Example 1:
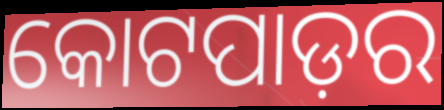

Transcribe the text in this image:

କୋଟପାଡ଼ର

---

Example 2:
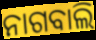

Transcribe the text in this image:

ନାଗବାଲି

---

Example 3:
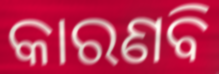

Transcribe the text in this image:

କାରଣବି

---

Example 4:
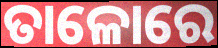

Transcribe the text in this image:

ତାଳୋରେ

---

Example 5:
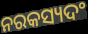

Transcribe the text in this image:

ନରକସ୍ୟଦଂ